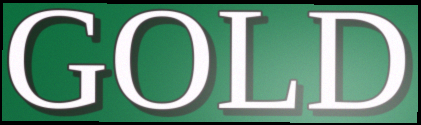
GOLD